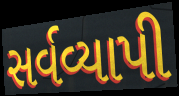
સર્વવ્યાપી